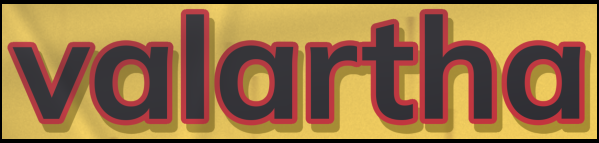
valartha